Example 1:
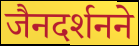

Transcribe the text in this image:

जैनदर्शनने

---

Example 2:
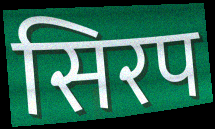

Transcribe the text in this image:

सिरप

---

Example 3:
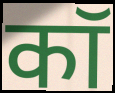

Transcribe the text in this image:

कॉ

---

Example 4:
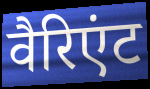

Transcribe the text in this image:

वैरिएंट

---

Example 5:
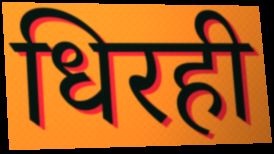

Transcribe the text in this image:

धिरही